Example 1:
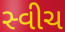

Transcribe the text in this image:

સ્વીચ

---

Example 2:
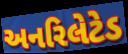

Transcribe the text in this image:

અનરિલેટેડ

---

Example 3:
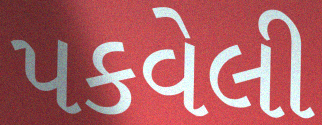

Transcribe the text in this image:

પકવેલી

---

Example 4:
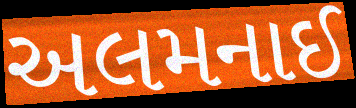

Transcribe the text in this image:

અલમનાઈ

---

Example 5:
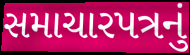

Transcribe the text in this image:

સમાચારપત્રનું